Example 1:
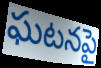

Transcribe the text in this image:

ఘటనపై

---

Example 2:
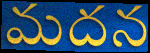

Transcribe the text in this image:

మదన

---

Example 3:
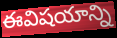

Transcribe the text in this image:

ఈవిషయాన్ని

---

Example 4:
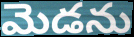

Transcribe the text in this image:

మెడను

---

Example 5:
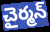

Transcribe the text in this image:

చైర్మన్